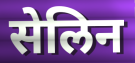
सेलिन